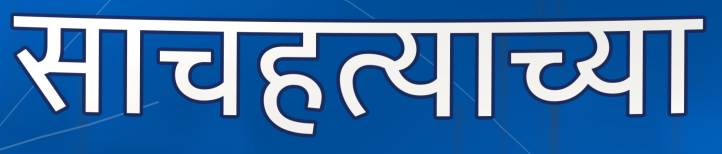
साचहत्याच्या